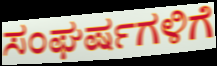
ಸಂಘರ್ಷಗಳಿಗೆ